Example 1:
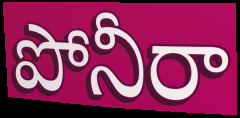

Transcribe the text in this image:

పోనీరా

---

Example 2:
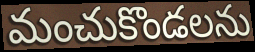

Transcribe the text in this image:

మంచుకొండలను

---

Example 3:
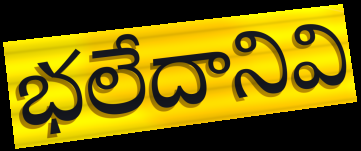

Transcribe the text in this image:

భలేదానివి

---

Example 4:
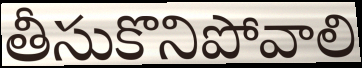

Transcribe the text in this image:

తీసుకొనిపోవాలి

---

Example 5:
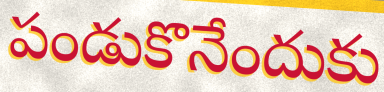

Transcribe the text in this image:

పండుకొనేందుకు